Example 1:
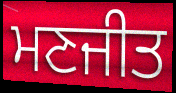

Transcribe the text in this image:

ਮਣਜੀਤ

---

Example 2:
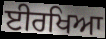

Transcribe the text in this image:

ਈਰਖਿਆ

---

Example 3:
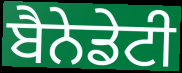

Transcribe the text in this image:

ਬੈਨੇਡੇਟੀ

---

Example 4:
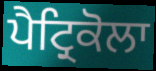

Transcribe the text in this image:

ਪੈਟ੍ਰਿਕੋਲਾ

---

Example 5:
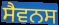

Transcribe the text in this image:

ਸੈਵਨਸ